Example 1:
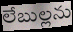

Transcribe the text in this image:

లేబుల్లను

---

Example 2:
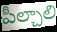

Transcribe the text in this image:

పీల్చాలి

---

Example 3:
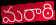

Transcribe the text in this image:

మరాఠి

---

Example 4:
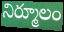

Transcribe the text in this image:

నిర్మూలం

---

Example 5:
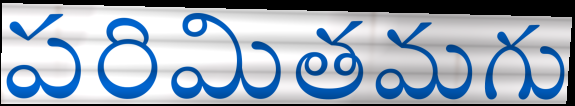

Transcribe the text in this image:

పరిమితమగు